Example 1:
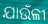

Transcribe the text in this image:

ଯାଉଁଳୀ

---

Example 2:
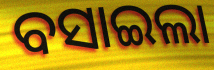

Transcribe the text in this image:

ବସାଇଲା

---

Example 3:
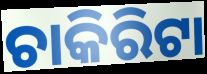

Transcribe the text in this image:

ଚାକିରିଟା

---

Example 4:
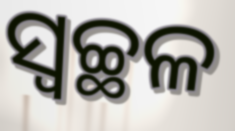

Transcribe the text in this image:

ସ୍ୱଚ୍ଛଳ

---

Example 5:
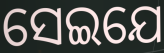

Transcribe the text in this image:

ସେଇଯେ